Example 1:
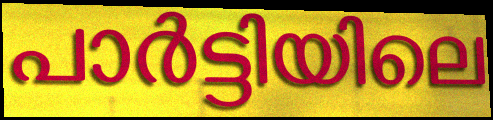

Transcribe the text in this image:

പാർട്ടിയിലെ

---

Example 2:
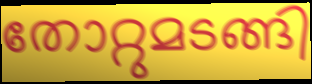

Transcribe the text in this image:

തോറ്റുമടങ്ങി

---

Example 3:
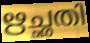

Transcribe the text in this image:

ഋച്ഛതി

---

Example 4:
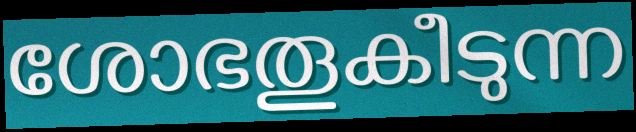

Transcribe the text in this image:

ശോഭതൂകീടുന്ന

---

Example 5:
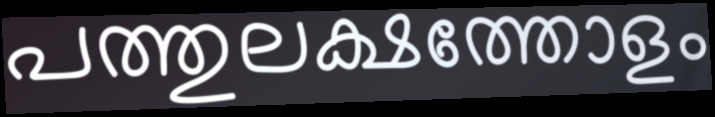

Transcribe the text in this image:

പത്തുലക്ഷത്തോളം